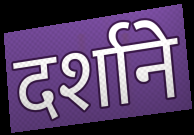
दर्शाने